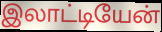
இலாட்டியேன்